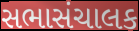
સભાસંચાલક